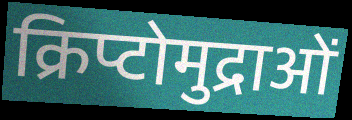
क्रिप्टोमुद्राओं